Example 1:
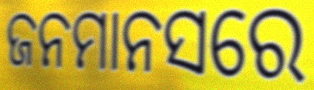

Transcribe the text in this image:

ଜନମାନସରେ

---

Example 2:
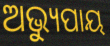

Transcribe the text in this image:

ଅଭ୍ୟୁପାୟ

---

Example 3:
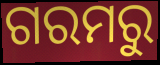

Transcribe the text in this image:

ଗରମରୁ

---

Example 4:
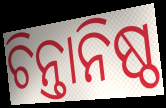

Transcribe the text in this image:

ଚିନ୍ତାନିଷ୍ଠ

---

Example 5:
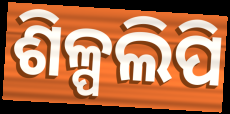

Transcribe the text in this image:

ଶିଳ୍ପଲିପି